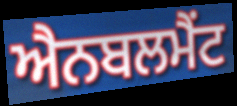
ਐਨਬਲਮੈਂਟ